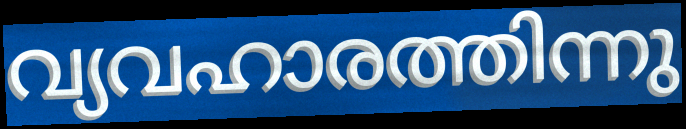
വ്യവഹാരത്തിന്നു